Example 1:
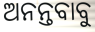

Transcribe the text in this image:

ଅନନ୍ତବାବୁ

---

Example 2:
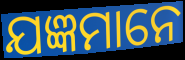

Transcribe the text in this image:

ଯଜ୍ଞମାନେ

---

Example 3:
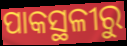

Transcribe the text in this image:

ପାକସ୍ଥଳୀରୁ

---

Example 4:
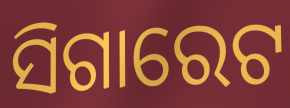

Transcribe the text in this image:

ସିଗାରେଟ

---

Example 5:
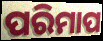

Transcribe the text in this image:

ପରିମାପ